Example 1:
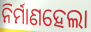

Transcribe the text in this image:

ନିର୍ମାଣହେଲା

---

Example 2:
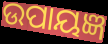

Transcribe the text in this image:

ଉପାୟଜ୍ଞ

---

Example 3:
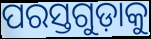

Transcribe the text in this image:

ପରସ୍ତଗୁଡ଼ାକୁ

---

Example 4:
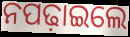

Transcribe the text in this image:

ନପଢ଼ାଇଲେ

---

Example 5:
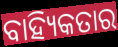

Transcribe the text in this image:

ବାହ୍ୟିକତାର